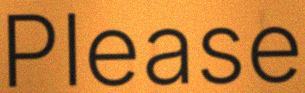
Please